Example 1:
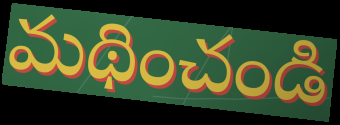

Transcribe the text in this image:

మథించండి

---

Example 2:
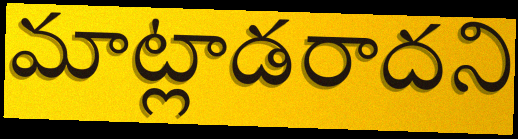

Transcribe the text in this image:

మాట్లాడరాదని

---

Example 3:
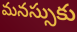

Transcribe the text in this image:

మనస్సుకు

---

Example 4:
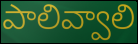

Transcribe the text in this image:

పాలివ్వాలి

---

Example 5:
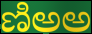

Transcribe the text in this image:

ణిఅఅ